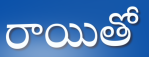
రాయితో